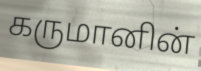
கருமானின்